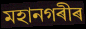
মহানগৰীৰ